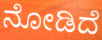
ನೋಡಿದೆ